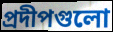
প্রদীপগুলো